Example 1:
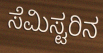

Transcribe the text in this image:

ಸೆಮಿಸ್ಟರಿನ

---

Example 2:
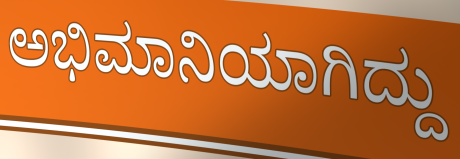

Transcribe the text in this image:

ಅಭಿಮಾನಿಯಾಗಿದ್ದು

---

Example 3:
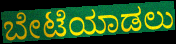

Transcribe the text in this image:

ಬೇಟೆಯಾಡಲು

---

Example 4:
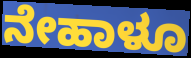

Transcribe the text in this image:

ನೇಹಾಳೂ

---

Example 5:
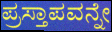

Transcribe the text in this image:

ಪ್ರಸ್ತಾಪವನ್ನೇ